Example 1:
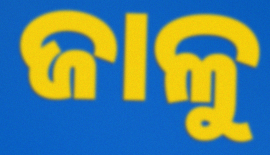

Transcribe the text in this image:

ଜାଳୁ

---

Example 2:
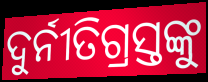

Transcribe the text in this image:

ଦୁର୍ନୀତିଗ୍ରସ୍ତଙ୍କୁ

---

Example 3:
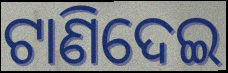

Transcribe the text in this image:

ଟାଣିଦେଇ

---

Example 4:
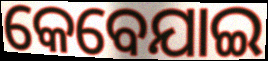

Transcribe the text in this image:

କେବେଯାଇ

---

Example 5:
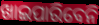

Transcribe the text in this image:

ଖାଇପାରିବେନି